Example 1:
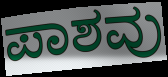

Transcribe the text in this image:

ಪಾಶವು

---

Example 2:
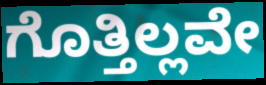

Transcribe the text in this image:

ಗೊತ್ತಿಲ್ಲವೇ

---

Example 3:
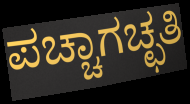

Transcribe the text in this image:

ಪಚ್ಚಾಗಚ್ಛತಿ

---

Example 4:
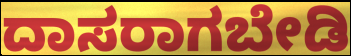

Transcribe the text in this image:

ದಾಸರಾಗಬೇಡಿ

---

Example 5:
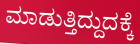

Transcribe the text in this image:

ಮಾಡುತ್ತಿದ್ದುದಕ್ಕೆ